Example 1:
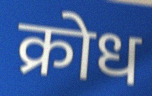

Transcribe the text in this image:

क्रोध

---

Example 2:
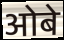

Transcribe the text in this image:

ओबे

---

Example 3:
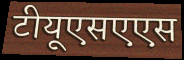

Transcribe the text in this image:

टीयूएसएएस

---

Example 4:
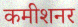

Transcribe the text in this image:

कमीशनर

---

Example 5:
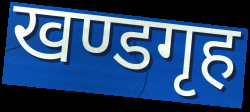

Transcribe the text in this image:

खण्डगृह